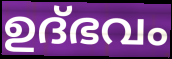
ഉദ്ഭവം